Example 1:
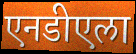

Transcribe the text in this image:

एनडीएला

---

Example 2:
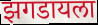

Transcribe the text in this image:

झगडायला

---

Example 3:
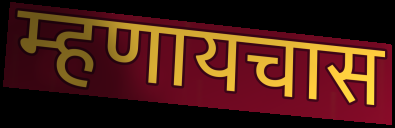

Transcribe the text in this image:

म्हणायचास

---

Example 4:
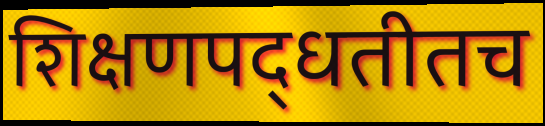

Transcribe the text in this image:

शिक्षणपद्धतीतच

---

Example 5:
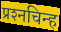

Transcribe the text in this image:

प्रश्नचिन्ह